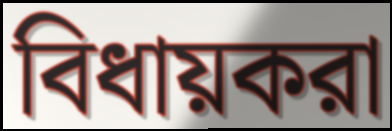
বিধায়করা